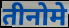
तीनोमे